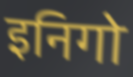
इनिगो